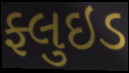
ફ્લુઇડ